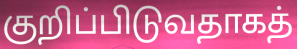
குறிப்பிடுவதாகத்